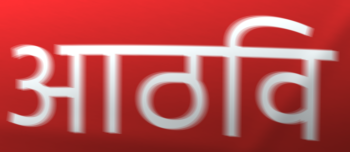
आठवि